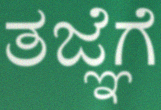
ತಜ್ಞೆಗೆ